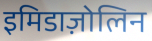
इमिडाज़ोलिन